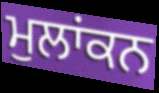
ਮੁਲਾਂਕਨ